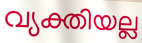
വ്യക്തിയല്ല